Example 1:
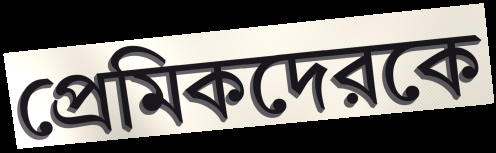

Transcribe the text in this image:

প্রেমিকদেরকে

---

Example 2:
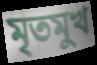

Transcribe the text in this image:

মৃতমুখ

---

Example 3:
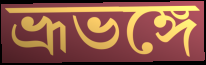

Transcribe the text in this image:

ভ্রূভঙ্গে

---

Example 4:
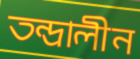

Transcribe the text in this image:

তন্দ্রালীন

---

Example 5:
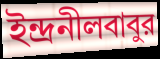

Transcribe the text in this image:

ইন্দ্রনীলবাবুর